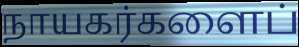
நாயகர்களைப்